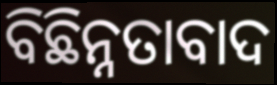
ବିଛିନ୍ନତାବାଦ